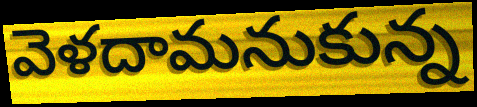
వెళదామనుకున్న